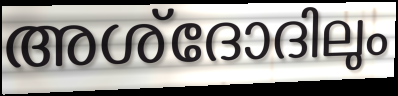
അശ്ദോദിലും